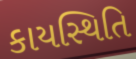
કાયસ્થિતિ